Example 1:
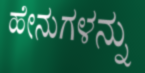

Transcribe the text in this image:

ಹೇನುಗಳನ್ನು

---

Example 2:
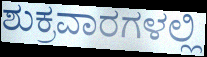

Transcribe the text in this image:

ಶುಕ್ರವಾರಗಳಲ್ಲಿ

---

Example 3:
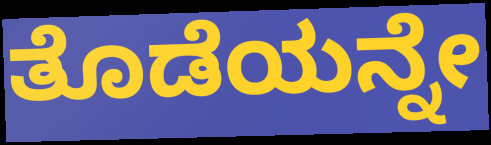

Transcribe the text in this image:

ತೊಡೆಯನ್ನೇ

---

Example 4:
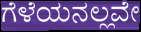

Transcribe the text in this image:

ಗೆಳೆಯನಲ್ಲವೇ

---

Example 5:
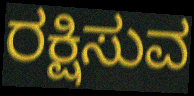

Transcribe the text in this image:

ರಕ್ಷಿಸುವ